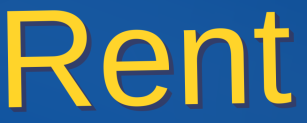
Rent